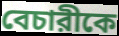
বেচারীকে